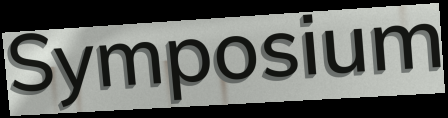
Symposium